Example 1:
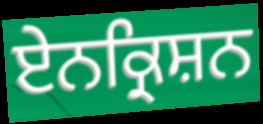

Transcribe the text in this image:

ਏਨਕ੍ਰਿਸ਼ਨ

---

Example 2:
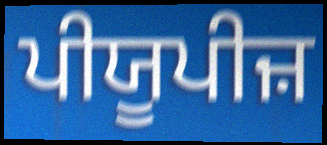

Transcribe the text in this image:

ਪੀਯੂਪੀਜ਼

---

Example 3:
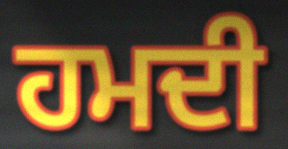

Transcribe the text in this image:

ਹਮਦੀ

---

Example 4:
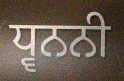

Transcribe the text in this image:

ਧ੍ਵਨਨੀ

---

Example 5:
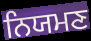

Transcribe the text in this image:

ਨਿਯਮਣ